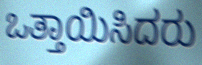
ಒತ್ತಾಯಿಸಿದರು